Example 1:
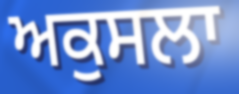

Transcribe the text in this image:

ਅਕੁਸਲਾ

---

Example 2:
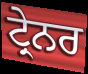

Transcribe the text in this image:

ਟ੍ਰੇਨਰ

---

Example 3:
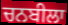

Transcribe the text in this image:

ਚਨਬੀਲਾ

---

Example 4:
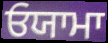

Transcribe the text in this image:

ਓਯਾਮਾ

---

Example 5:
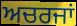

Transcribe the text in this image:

ਅਚਰਜਾਂ